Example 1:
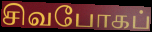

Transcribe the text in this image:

சிவபோகப்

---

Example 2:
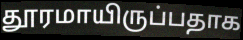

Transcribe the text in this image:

தூரமாயிருப்பதாக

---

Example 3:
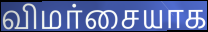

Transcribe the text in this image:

விமர்சையாக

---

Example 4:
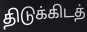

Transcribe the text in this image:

திடுக்கிடத்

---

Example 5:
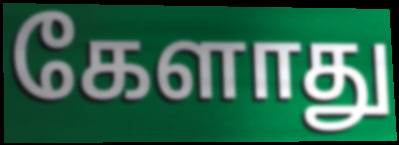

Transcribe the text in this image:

கேளாது